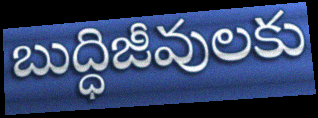
బుద్ధిజీవులకు